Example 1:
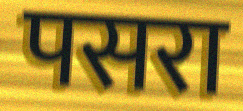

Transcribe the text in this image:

पसरा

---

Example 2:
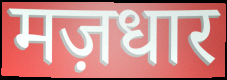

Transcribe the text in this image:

मज़धार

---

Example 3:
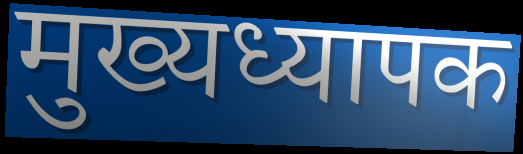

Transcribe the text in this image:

मुख्यध्यापक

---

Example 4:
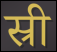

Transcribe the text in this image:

स्री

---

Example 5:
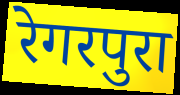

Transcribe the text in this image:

रेगरपुरा